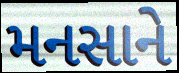
મનસાને